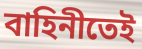
বাহিনীতেই